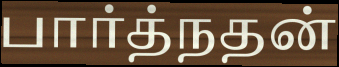
பார்த்நதன்